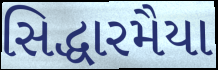
સિદ્ધારમૈયા